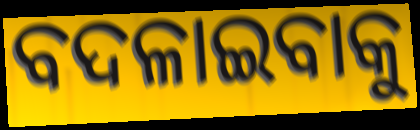
ବଦଳାଇବାକୁ